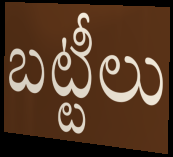
బట్టీలు